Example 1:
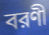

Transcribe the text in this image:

বরণী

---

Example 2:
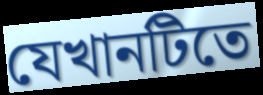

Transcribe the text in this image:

যেখানটিতে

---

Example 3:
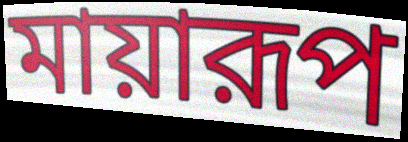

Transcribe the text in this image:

মায়ারূপ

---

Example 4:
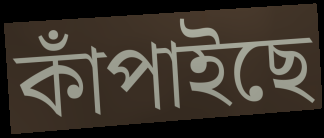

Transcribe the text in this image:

কাঁপাইছে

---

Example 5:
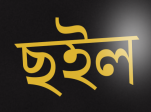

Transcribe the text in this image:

ছইল